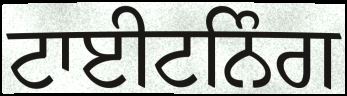
ਟਾਈਟਨਿੰਗ